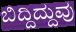
ಬಿದ್ದಿದ್ದುವು